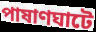
পাষাণঘাটে